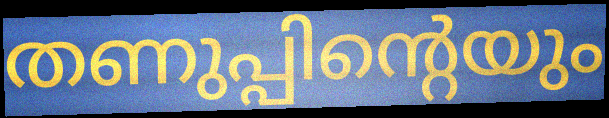
തണുപ്പിന്റെയും